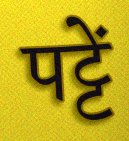
पट्टें